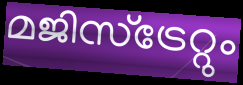
മജിസ്ട്രേറ്റും